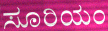
ಸೂರಿಯಂ